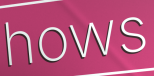
hows